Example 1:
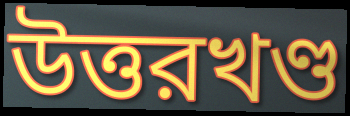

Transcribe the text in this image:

উত্তরখণ্ড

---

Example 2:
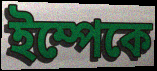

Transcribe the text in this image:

ইম্পেকে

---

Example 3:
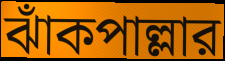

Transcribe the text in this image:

ঝাঁকপাল্লার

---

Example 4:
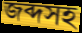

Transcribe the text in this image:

জব্দসহ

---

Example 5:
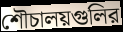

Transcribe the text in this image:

শৌচালয়গুলির